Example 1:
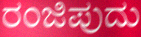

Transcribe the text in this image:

ರಂಜಿಪುದು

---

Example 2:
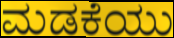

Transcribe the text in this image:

ಮಡಕೆಯು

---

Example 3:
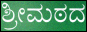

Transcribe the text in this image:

ಶ್ರೀಮಠದ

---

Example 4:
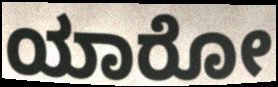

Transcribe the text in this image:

ಯಾರೋ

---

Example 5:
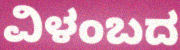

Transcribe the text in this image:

ವಿಳಂಬದ